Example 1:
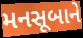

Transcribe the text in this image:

મનસૂબાને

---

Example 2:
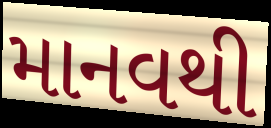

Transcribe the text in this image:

માનવથી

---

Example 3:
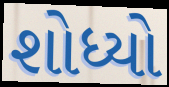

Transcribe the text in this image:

શોધ્યો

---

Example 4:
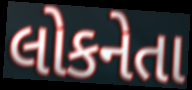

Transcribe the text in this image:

લોકનેતા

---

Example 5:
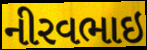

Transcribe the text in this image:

નીરવભાઇ